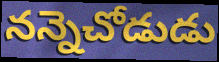
నన్నెచోడుడు